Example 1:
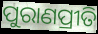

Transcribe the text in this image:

ପୁରାଣପ୍ରୀତି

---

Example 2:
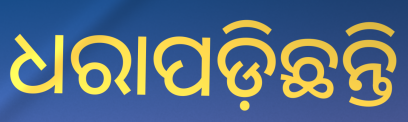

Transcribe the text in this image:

ଧରାପଡ଼ିଛନ୍ତି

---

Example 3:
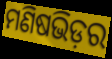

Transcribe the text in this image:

ମଣିଷଭିଡ଼ର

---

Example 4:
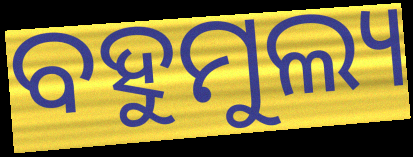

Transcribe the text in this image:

ବହୁମୁଲ୍ୟ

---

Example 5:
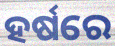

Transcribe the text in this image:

ହର୍ଷରେ